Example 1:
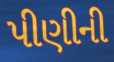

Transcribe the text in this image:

પીણીની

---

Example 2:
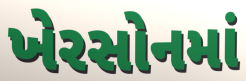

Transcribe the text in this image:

ખેરસોનમાં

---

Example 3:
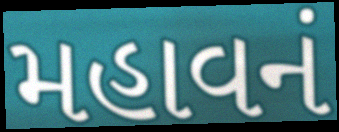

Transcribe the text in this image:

મહાવનં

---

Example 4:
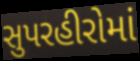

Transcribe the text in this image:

સુપરહીરોમાં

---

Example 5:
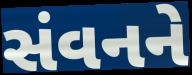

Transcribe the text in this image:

સંવનને